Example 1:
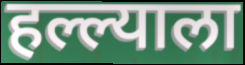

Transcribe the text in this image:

हल्ल्याला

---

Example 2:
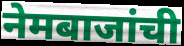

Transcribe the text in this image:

नेमबाजांची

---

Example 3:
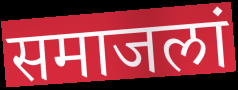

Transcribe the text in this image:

समाजलां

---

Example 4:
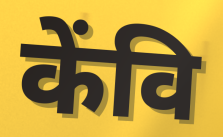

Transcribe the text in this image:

केंवि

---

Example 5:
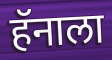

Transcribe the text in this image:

हॅनाला